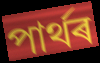
পাৰ্থৰ